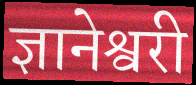
ज्ञानेश्वरी